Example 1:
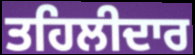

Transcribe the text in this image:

ਤਹਿਲੀਦਾਰ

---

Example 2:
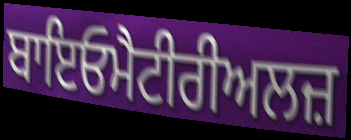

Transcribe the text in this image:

ਬਾਇਓਮੈਟੀਰੀਅਲਜ਼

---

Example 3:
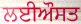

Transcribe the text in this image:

ਲਈਔਸਤ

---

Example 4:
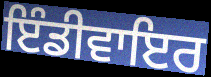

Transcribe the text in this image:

ਇੰਡੀਵਾਇਰ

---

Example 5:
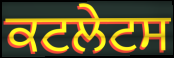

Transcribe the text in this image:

ਕਟਲੇਟਸ